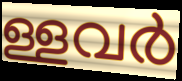
ള്ളവർ